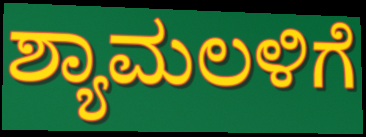
ಶ್ಯಾಮಲಳಿಗೆ